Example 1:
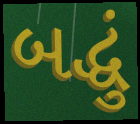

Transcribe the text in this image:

બદ્ધું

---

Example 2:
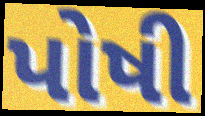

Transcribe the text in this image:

પોષી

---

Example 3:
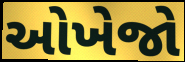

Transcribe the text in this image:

ઓખેજો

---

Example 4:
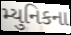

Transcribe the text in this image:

મ્યુનિકના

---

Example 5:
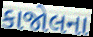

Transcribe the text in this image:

કાજોલના